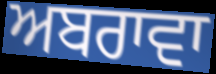
ਅਬਰਾਵਾ